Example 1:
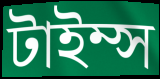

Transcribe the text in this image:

টাইম্স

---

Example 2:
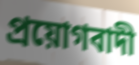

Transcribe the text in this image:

প্রয়োগবাদী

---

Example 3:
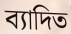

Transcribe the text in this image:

ব্যাদিত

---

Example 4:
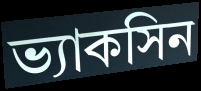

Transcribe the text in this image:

ভ্যাকসিন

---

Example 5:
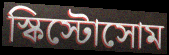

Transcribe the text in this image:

স্কিস্টোসোম